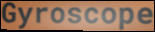
Gyroscope